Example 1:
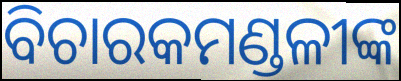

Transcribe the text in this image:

ବିଚାରକମଣ୍ଡଳୀଙ୍କ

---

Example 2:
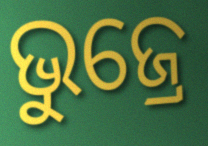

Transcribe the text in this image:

ଭୁଜ୍ରେ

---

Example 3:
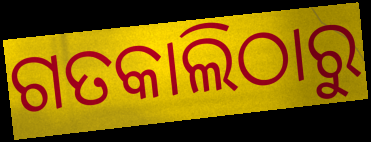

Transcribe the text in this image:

ଗତକାଲିଠାରୁ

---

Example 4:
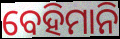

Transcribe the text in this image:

ବେହିମାନି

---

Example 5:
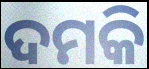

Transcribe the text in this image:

ଦମକି